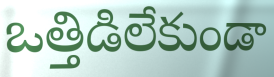
ఒత్తిడిలేకుండా